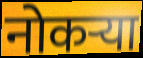
नोकऱ्या